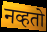
नव्हतो